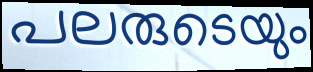
പലരുടെയും